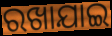
ରଖାଯାଇ